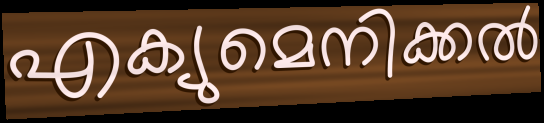
എക്യുമെനിക്കൽ